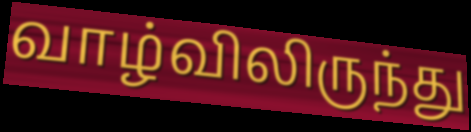
வாழ்விலிருந்து